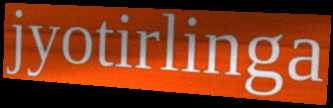
jyotirlinga